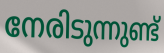
നേരിടുന്നുണ്ട്